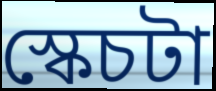
স্কেচটা